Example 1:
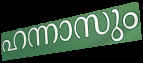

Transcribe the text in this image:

ഹന്നാസും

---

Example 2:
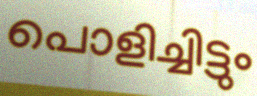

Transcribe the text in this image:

പൊളിച്ചിട്ടും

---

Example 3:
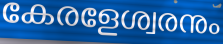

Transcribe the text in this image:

കേരളേശ്വരനും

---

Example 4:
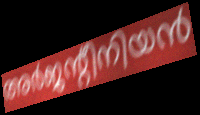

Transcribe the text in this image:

അർജന്റീനിയൻ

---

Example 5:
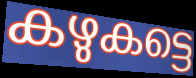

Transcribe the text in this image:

കഴുകട്ടെ